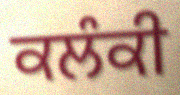
ਕਲੰਕੀ